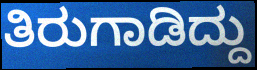
ತಿರುಗಾಡಿದ್ದು